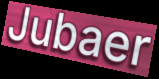
Jubaer